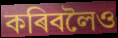
কৰিবলৈও